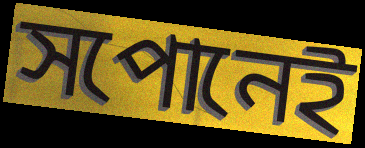
সপোনেই